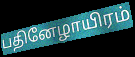
பதினேழாயிரம்